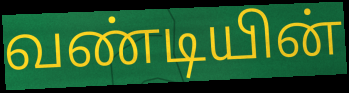
வண்டியின்